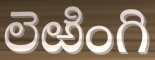
లెఱింగి